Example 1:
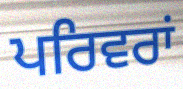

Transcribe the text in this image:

ਪਰਿਵਰਾਂ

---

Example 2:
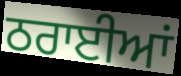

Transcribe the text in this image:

ਠਰਾਈਆਂ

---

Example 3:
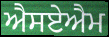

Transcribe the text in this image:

ਐਸਏਐਮ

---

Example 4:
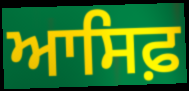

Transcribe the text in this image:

ਆਸਿਫ਼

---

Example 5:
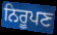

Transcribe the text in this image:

ਨਿਰੂਪਣ